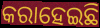
କରାହେଇଛି